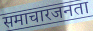
समाचारजनता